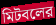
মিটবলের